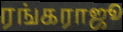
ரங்கராஜூ